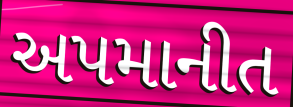
અપમાનીત